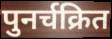
पुनर्चक्रित